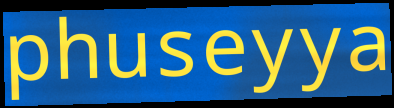
phuseyya